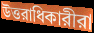
উত্তরাধিকারীরা